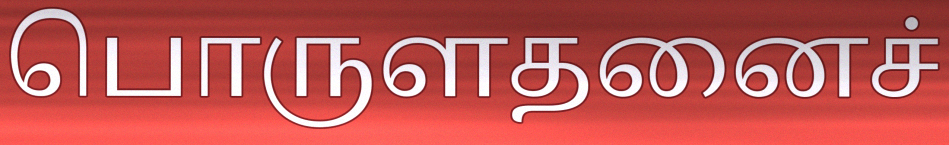
பொருளதனைச்